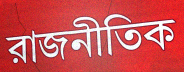
রাজনীতিক